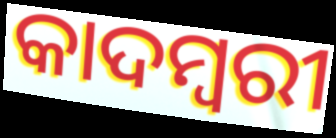
କାଦମ୍ୱରୀ